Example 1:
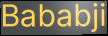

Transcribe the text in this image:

Bababji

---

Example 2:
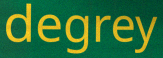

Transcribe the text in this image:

degrey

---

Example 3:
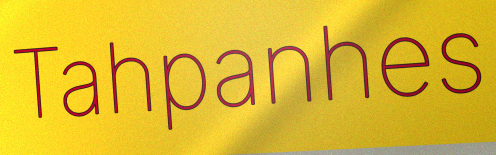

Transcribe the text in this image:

Tahpanhes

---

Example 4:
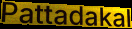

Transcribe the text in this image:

Pattadakal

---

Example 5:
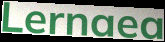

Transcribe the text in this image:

Lernaea